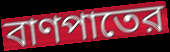
বাণপাতের